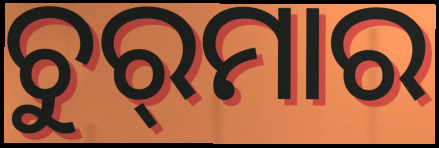
ଚୁର୍‍ମାର